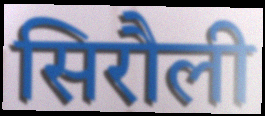
सिरौली